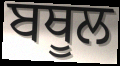
ਬਥੂਲ